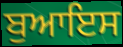
ਬੁਆਇਸ